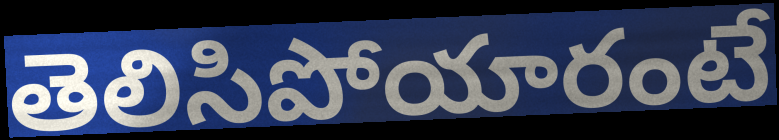
తెలిసిపోయారంటే